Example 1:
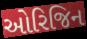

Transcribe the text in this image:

ઓરિજિન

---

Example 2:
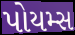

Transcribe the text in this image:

પોયમ્સ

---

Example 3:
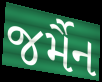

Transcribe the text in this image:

જર્મૈન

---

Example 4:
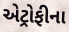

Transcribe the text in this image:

એટ્રોફીના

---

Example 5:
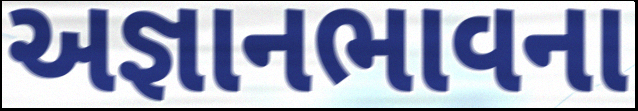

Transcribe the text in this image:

અજ્ઞાનભાવના